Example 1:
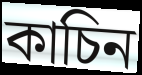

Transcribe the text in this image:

কাচিন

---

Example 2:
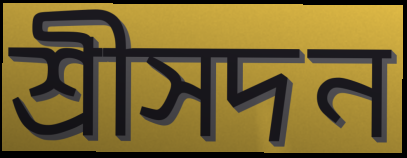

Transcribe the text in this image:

শ্রীসদন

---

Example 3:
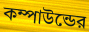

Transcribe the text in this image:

কম্পাউন্ডের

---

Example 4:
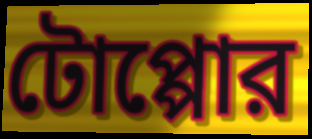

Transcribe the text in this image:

টোপ্পোর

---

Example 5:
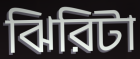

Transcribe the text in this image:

ঝিরিটা